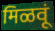
मिळवूं